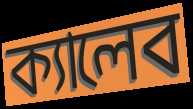
ক্যালেব